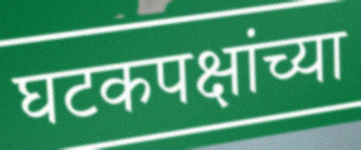
घटकपक्षांच्या